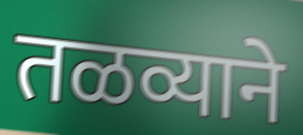
तळव्याने